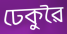
ঢেকুৱৈ